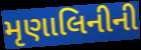
મૃણાલિનીની